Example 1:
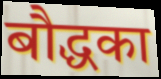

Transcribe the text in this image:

बौद्धका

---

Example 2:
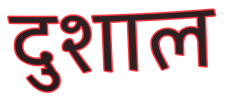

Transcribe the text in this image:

दुशाल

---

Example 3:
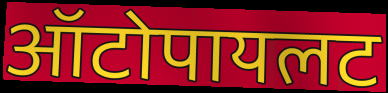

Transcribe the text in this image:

ऑटोपायलट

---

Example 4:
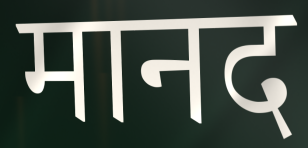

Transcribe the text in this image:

मानद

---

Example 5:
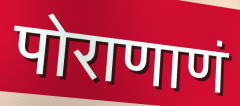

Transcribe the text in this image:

पोराणाणं